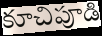
కూచిపూడి